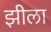
झीला